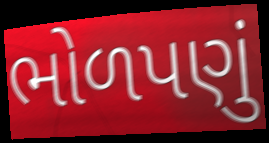
ભોળપણું